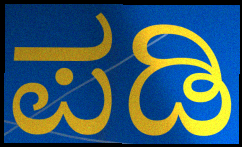
ಪಡಿ